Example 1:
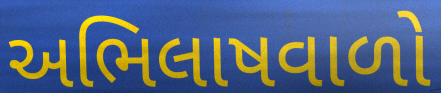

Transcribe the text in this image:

અભિલાષવાળો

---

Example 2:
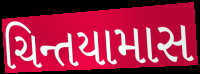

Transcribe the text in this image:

ચિન્તયામાસ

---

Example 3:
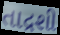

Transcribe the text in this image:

તાદ્રશી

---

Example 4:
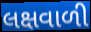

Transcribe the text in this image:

લક્ષવાળી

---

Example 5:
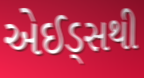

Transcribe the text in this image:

એઈડ્સથી